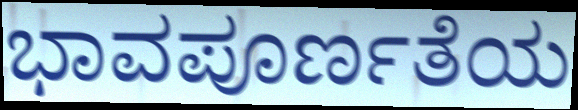
ಭಾವಪೂರ್ಣತೆಯ